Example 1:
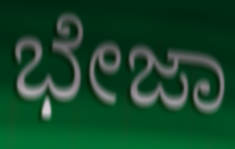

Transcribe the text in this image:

ಭೇಜಾ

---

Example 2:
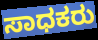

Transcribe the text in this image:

ಸಾಧಕರು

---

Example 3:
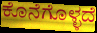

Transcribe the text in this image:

ಕೊನೆಗೊಳ್ಳದೆ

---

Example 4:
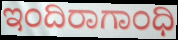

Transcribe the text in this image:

ಇಂದಿರಾಗಾಂಧಿ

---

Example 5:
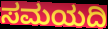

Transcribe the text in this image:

ಸಮಯದಿ